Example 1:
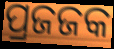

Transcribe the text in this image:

ପ୍ରଜଜକ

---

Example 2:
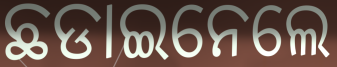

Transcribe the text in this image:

ଛଡାଇନେଲେ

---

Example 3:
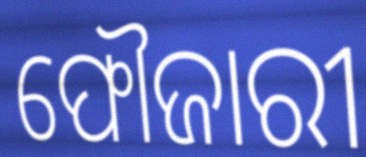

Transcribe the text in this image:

ଫୌଜାରୀ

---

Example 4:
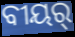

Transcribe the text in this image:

ବୀୟର୍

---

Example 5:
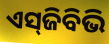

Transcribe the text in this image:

ଏସ୍‌ଜିବିଭି